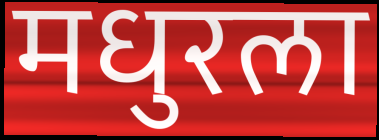
मधुरला